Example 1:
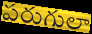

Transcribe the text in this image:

పరుగులా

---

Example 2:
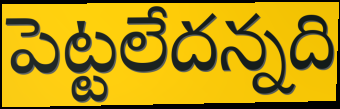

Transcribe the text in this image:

పెట్టలేదన్నది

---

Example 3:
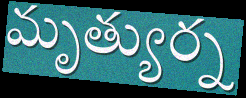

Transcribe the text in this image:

మృత్యుర్న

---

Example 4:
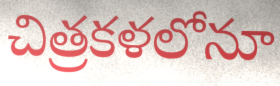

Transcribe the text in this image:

చిత్రకళలోనూ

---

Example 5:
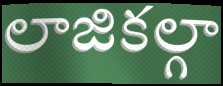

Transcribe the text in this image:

లాజికల్గా